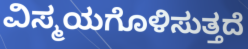
ವಿಸ್ಮಯಗೊಳಿಸುತ್ತದೆ